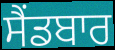
ਸੈਂਡਬਾਰ